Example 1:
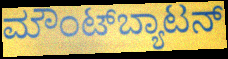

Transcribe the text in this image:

ಮೌಂಟ್‌ಬ್ಯಾಟನ್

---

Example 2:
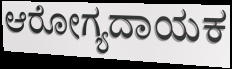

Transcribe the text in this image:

ಆರೋಗ್ಯದಾಯಕ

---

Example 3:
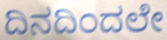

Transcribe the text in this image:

ದಿನದಿಂದಲೇ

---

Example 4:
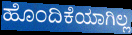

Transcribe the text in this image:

ಹೊಂದಿಕೆಯಾಗಿಲ್ಲ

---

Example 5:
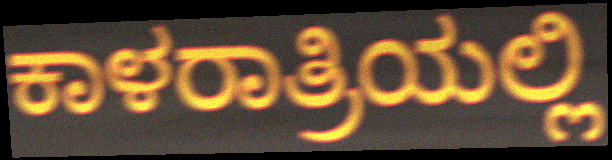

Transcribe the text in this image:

ಕಾಳರಾತ್ರಿಯಲ್ಲಿ